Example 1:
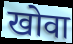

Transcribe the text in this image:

खोवा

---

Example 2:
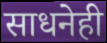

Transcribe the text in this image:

साधनेही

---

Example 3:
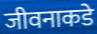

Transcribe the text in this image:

जीवनाकडे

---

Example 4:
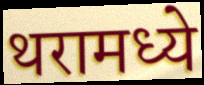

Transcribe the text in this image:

थरामध्ये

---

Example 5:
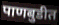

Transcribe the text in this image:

पाणबुडीत